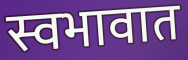
स्वभावात